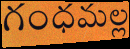
గంధమల్ల